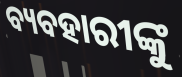
ବ୍ୟବହାରୀଙ୍କୁ